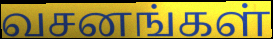
வசனங்கள்